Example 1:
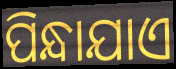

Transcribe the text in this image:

ପିନ୍ଧାଯାଏ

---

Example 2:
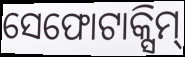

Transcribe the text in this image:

ସେଫୋଟାକ୍ସିମ୍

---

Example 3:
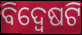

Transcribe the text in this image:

ବିଦ୍ୱେଷଟି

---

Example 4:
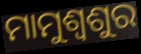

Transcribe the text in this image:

ମାମୁଶ୍ବଶୁର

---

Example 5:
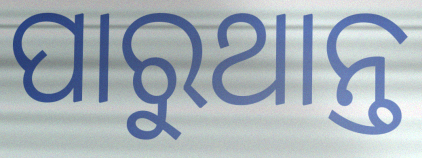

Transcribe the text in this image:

ପାରୁଥାନ୍ତ